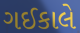
ગઈકાલે